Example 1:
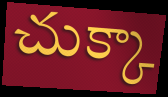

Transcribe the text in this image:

చుక్కా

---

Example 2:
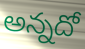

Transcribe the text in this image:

అన్నదో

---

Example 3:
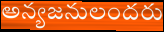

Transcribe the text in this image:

అన్యజనులందరు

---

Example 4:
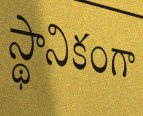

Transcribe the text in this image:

స్థానికంగా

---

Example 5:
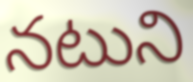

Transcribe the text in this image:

నటుని